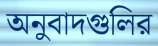
অনুবাদগুলির